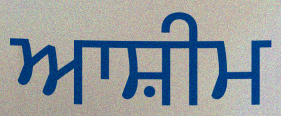
ਆਸ਼ੀਮ